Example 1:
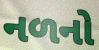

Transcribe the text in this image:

નળનો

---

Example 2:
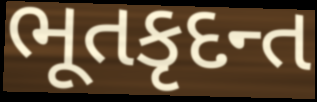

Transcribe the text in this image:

ભૂતકૃદન્ત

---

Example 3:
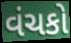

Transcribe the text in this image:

વંચકો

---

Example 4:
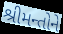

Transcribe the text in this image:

શ્રીમન્તોને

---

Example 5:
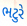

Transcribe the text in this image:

ભટુરે